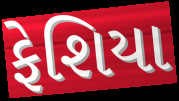
ફેશિયા